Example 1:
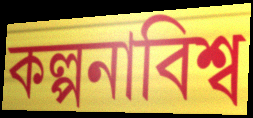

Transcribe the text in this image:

কল্পনাবিশ্ব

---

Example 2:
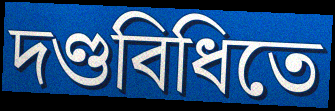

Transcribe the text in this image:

দণ্ডবিধিতে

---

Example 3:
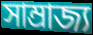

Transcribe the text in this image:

সাম্রাজ্য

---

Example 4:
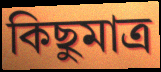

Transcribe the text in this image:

কিছুমাত্র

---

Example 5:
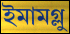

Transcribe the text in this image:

ইমামগ্লু